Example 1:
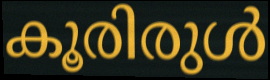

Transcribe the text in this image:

കൂരിരുൾ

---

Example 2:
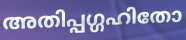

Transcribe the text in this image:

അതിപ്പഗ്ഗഹിതോ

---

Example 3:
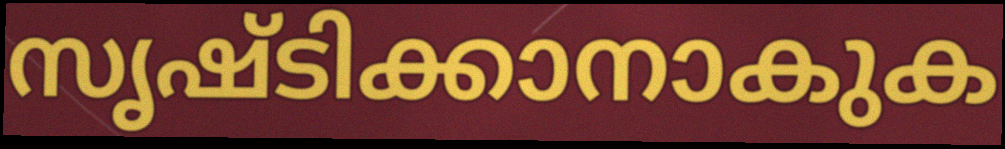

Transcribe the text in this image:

സൃഷ്ടിക്കാനാകുക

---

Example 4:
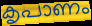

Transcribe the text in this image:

കൃപാണം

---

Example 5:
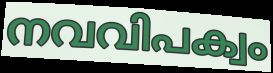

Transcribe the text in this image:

നവവിപക്വം